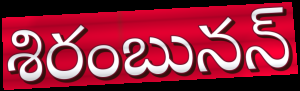
శిరంబునన్